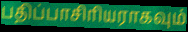
பதிப்பாசிரியராகவும்